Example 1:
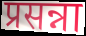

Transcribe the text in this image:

प्रसन्ना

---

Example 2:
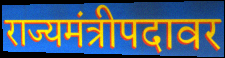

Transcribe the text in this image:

राज्यमंत्रीपदावर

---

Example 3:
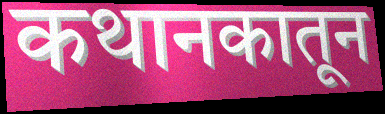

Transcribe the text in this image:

कथानकातून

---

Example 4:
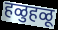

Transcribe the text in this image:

हळुहळू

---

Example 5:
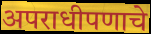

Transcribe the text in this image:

अपराधीपणाचे